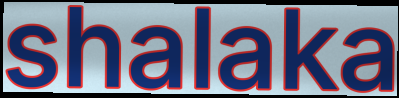
shalaka